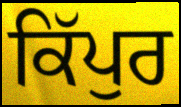
ਕਿੱਪੁਰ